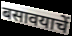
बसावयाचें